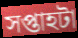
সপ্তাহটা